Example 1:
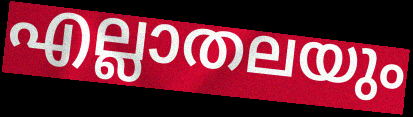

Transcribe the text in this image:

എല്ലാതലയും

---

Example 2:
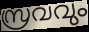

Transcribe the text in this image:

സ്രവവും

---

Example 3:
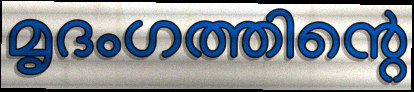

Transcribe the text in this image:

മൃദംഗത്തിന്റെ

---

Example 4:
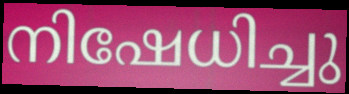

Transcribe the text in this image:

നിഷേധിച്ചു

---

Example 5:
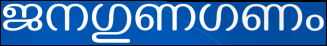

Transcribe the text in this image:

ജനഗുണഗണം